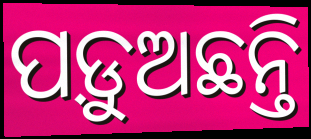
ପଡ଼ୁଅଛନ୍ତି